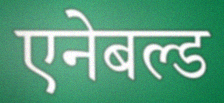
एनेबल्ड